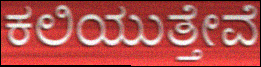
ಕಲಿಯುತ್ತೇವೆ